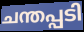
ചന്തപ്പടി